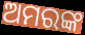
ଅମରଙ୍କ